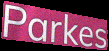
Parkes